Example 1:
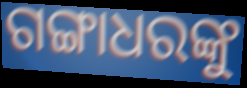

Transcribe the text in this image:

ଗଙ୍ଗାଧରଙ୍କୁ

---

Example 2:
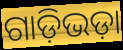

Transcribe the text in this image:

ଗାଡ଼ିଭଡ଼ା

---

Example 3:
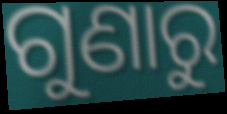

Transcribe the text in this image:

ଗୁଣାରୁ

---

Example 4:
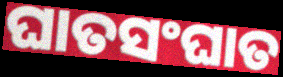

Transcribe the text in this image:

ଘାତସଂଘାତ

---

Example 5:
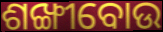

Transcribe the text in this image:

ଶଙ୍ଖୀବୋଉ